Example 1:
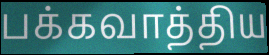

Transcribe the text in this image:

பக்கவாத்திய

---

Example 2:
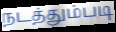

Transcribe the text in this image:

நடத்தும்படி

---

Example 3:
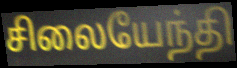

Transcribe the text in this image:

சிலையேந்தி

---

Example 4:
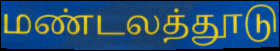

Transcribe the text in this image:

மண்டலத்தூடு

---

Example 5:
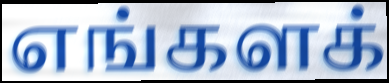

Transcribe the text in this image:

எங்களக்